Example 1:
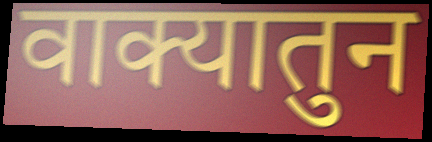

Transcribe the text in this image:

वाक्यातुन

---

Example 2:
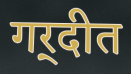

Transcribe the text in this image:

गर्दीत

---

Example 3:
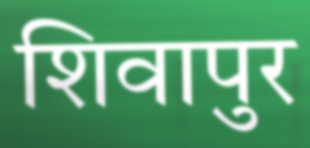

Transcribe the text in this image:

शिवापुर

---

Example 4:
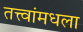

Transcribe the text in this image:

तत्त्वांमधला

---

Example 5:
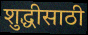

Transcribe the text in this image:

शुद्धीसाठी